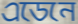
এডেনে